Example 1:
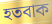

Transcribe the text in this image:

হতবাক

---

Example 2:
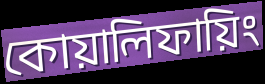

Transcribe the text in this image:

কোয়ালিফায়িং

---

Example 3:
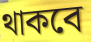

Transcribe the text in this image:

থাকবে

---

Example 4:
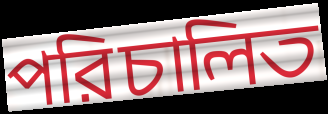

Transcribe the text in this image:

পরিচালিত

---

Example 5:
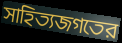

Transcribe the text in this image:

সাহিত্যজগতের